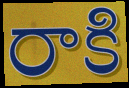
రాకి